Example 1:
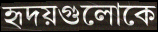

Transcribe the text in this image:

হৃদয়গুলোকে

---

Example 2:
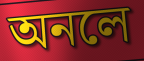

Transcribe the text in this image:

অনলে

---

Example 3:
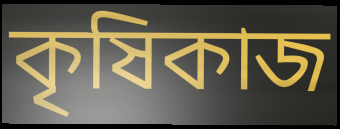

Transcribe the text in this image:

কৃষিকাজ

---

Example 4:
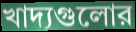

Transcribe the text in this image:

খাদ্যগুলোর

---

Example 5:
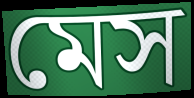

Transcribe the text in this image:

মেস